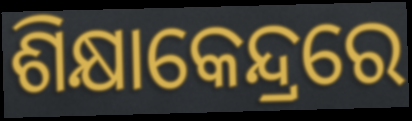
ଶିକ୍ଷାକେନ୍ଦ୍ରରେ